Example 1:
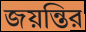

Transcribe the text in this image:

জয়ন্তির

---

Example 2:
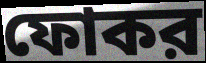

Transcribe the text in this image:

ফোকর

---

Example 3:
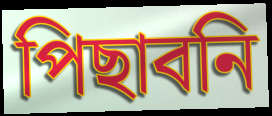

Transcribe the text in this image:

পিছাবনি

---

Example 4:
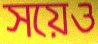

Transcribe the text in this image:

সয়েও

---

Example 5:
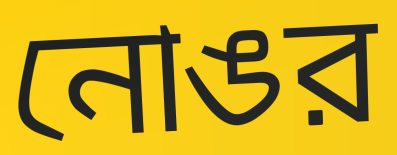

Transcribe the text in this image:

নোঙর